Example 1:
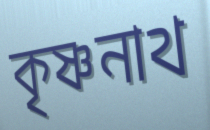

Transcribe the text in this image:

কৃষ্ণনাথ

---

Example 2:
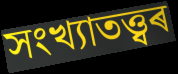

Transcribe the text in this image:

সংখ্যাতত্ত্বৰ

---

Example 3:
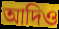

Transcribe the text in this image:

আদিও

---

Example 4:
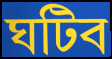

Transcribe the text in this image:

ঘটিব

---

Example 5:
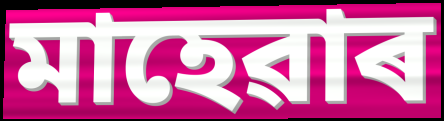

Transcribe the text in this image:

মাহেৱাৰ